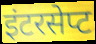
इंटरसेप्ट